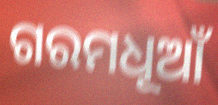
ଗରମଧୂଆଁ